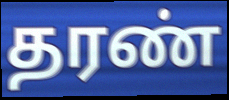
தரண்